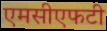
एमसीएफटी